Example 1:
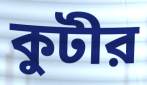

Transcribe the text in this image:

কুটীর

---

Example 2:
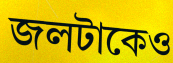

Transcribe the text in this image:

জলটাকেও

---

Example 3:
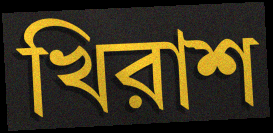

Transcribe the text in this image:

খিরাশ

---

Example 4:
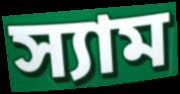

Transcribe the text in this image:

স্যাম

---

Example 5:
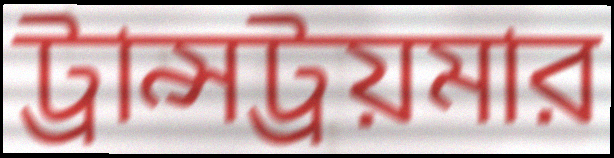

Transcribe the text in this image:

ট্রান্সট্রয়মার